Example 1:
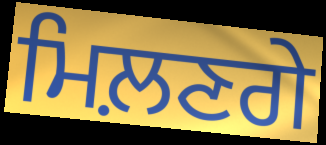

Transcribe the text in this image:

ਮਿਲ਼ਣਗੇ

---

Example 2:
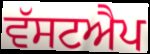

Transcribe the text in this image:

ਵੱਸਟਐਪ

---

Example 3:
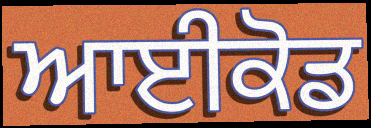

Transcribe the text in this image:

ਆਈਕੋਡ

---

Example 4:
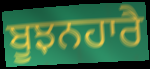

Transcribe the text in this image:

ਬੂਝਨਹਾਰੈ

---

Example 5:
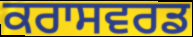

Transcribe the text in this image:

ਕਰਾਸਵਰਡ